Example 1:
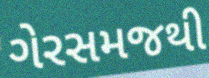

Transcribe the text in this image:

ગેરસમજથી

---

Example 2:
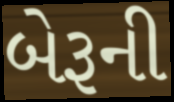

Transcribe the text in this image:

બેરૂની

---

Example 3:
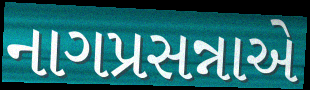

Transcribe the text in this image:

નાગપ્રસન્નાએ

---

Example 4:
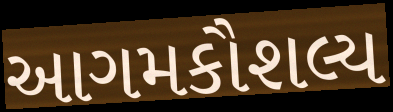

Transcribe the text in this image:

આગમકૌશલ્ય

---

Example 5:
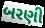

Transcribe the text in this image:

બરણી